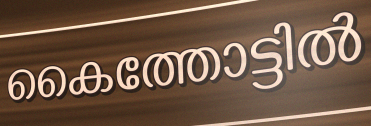
കൈത്തോട്ടിൽ